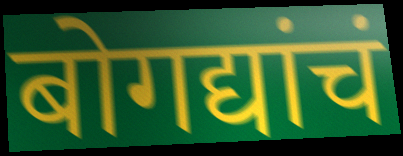
बोगद्यांचं